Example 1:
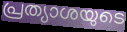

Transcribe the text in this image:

പ്രത്യാശയുടെ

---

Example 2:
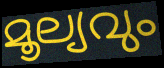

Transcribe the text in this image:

മൂല്യവും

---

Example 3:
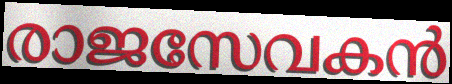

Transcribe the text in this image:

രാജസേവകൻ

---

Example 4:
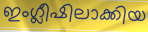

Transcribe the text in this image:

ഇംഗ്ലീഷിലാക്കിയ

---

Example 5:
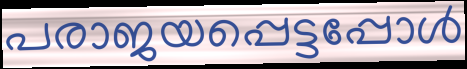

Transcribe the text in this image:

പരാജയപ്പെട്ടപ്പോൾ